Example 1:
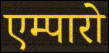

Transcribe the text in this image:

एम्पारो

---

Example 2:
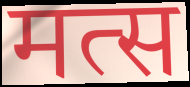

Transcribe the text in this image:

मत्स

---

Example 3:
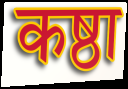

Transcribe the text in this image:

कष्ठा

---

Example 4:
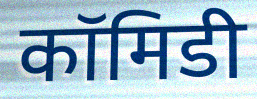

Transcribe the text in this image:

कॉमिडी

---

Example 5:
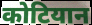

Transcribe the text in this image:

कोटियान